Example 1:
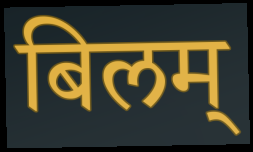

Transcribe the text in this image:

बिलम्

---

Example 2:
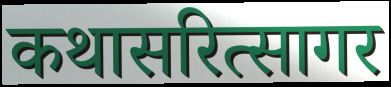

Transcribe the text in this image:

कथासरित्सागर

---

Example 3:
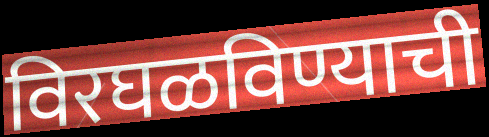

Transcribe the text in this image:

विरघळविण्याची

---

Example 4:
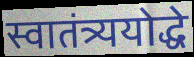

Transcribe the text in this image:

स्वातंत्र्ययोद्धे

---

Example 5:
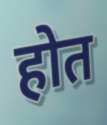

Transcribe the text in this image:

होत